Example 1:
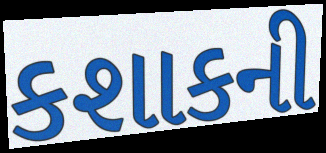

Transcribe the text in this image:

કશાકની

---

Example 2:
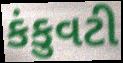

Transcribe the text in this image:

કંકુવટી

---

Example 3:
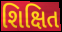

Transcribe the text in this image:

શિક્ષિત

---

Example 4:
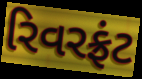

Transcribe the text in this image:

રિવરફ્રંટ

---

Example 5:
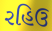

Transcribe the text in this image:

રહિઉ